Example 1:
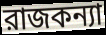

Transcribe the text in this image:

রাজকন্যা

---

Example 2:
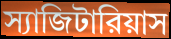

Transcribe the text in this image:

স্যাজিটারিয়াস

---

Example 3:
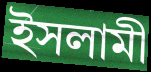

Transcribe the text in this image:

ইসলামী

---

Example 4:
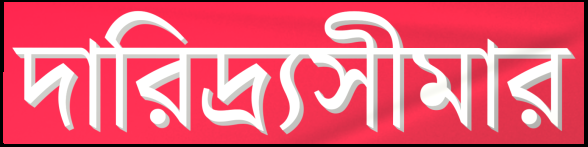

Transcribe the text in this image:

দারিদ্র্যসীমার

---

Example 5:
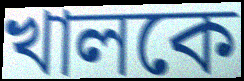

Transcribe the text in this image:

খালকে